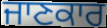
ਜਾਣਕਾਰ